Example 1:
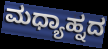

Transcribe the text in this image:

ಮಧ್ಯಾಹ್ನದ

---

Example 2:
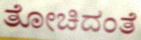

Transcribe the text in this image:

ತೋಚಿದಂತೆ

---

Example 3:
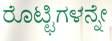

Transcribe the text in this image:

ರೊಟ್ಟಿಗಳನ್ನೇ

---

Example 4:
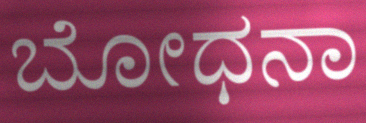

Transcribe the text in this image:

ಬೋಧನಾ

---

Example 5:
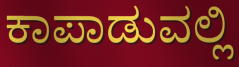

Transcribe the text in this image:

ಕಾಪಾಡುವಲ್ಲಿ